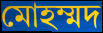
মোহম্মদ